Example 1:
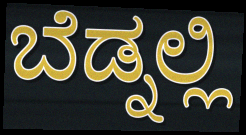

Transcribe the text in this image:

ಬೆಡ್ನಲ್ಲಿ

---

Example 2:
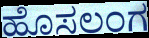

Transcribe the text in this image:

ಹೊಸಲಂಗ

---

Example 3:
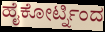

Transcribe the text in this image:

ಹೈಕೋರ್ಟ್ನಿಂದ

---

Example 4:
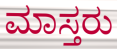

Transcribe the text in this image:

ಮಾಸ್ತರು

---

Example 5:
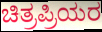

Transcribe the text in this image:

ಚಿತ್ರಪ್ರಿಯರ